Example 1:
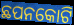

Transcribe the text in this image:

ଛପନକୋଟି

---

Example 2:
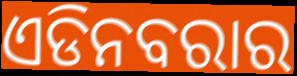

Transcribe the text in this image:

ଏଡିନବରାର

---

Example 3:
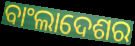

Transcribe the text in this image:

ବାଂଲାଦେଶର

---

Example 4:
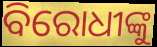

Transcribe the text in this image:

ବିରୋଧୀଙ୍କୁ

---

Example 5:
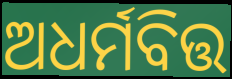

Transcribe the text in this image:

ଅଧର୍ମବିତ୍ତ